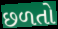
છળતો